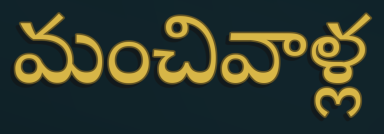
మంచివాళ్ల